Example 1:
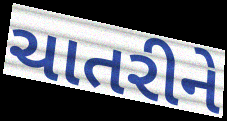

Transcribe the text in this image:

ચાતરીને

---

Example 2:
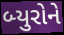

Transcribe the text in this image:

બ્યુરોને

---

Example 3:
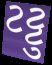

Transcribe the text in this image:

ટટ્ટુ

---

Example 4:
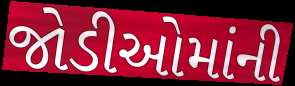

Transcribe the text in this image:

જોડીઓમાંની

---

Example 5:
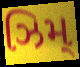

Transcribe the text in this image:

ઝિમ્